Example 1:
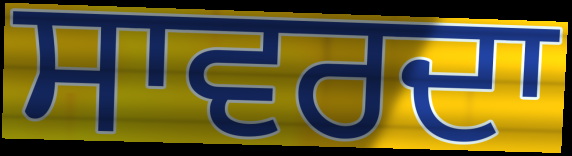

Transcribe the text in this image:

ਸਾਵਰਦਾ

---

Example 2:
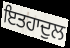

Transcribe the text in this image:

ਇਤਹਾਦੁਲ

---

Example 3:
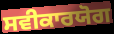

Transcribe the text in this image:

ਸਵੀਕਾਰਯੋਗ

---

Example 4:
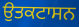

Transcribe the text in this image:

ਉਤਕਟਾਸਨ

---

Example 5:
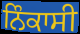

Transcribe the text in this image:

ਨਿੰਕਾਸੀ